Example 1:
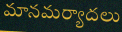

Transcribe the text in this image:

మానమర్యాదలు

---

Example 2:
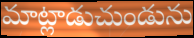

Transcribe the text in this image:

మాట్లాడుచుండును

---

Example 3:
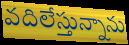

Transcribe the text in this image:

వదిలేస్తున్నాను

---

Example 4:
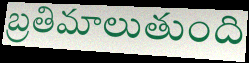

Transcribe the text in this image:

బ్రతిమాలుతుంది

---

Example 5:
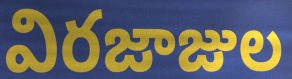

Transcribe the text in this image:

విరజాజుల